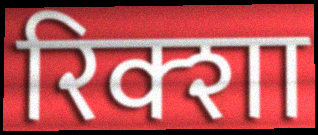
रिक्शा